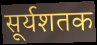
सूर्यशतक